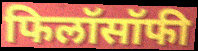
फिलॉसॉफी